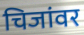
चिजांवर